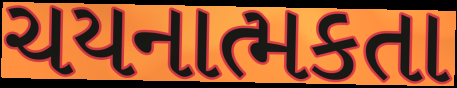
ચયનાત્મકતા